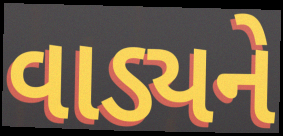
વાડ્યને